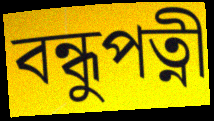
বন্ধুপত্নী